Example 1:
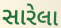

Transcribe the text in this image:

સારેલા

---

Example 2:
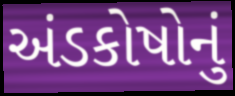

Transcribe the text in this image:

અંડકોષોનું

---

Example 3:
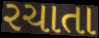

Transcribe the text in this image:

રચાતા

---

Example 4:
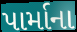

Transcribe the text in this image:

પાર્માના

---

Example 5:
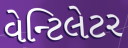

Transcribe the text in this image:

વેન્‍ટિલેટર